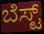
ಬೆಸ್ಟ್